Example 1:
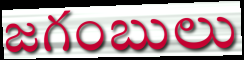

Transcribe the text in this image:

జగంబులు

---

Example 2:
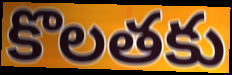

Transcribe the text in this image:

కొలతకు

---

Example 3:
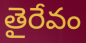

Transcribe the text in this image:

తైరేవం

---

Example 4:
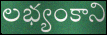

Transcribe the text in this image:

లభ్యంకాని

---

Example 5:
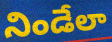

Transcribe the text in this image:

నిండేలా